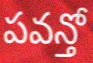
పవన్తో